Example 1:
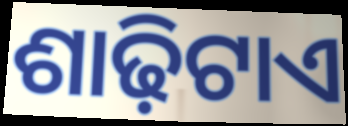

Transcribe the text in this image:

ଶାଢ଼ିଟାଏ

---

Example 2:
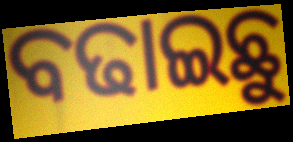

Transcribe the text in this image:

ବଢାଇଛୁ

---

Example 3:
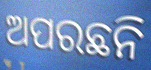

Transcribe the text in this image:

ଅପରଛନି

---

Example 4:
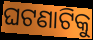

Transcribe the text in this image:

ଘଟଣାଟିକୁ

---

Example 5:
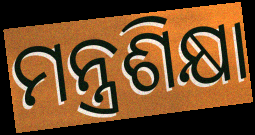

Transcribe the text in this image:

ମନ୍ତ୍ରଶିକ୍ଷା